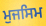
ਮੁਜਸਿਮ